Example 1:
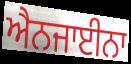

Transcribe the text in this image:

ਐਨਜਾਈਨਾ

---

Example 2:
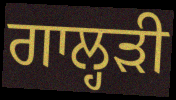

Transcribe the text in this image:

ਗਾਲ੍ਹੜੀ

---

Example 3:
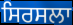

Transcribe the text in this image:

ਸਿਰਸਲਾ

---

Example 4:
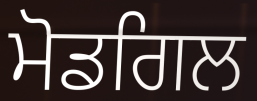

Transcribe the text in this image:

ਮੋਡਗਿਲ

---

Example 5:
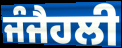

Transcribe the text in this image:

ਜੰਜੈਹਲੀ